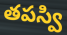
తపస్వి